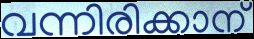
വന്നിരിക്കാന്